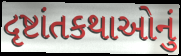
દૃષ્ટાંતકથાઓનું